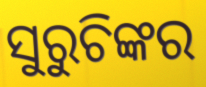
ସୁରୁଚିଙ୍କର